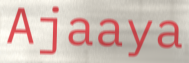
Ajaaya